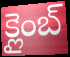
క్లైంబ్